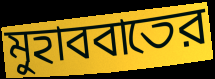
মুহাববাতের